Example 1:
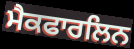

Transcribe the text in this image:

ਮੈਕਫਾਰਲਿਨ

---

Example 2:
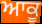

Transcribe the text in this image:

ਆਕੂ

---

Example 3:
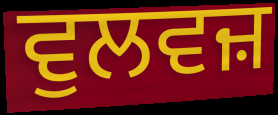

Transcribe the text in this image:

ਵੁਲਵਜ਼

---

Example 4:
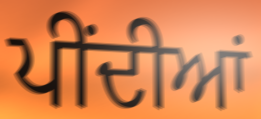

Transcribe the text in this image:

ਪੀਂਦੀਆਂ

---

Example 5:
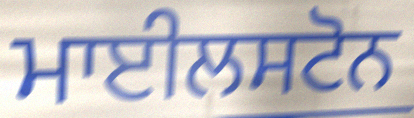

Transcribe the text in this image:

ਮਾਈਲਸਟੋਨ